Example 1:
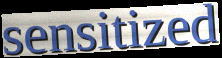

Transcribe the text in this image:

sensitized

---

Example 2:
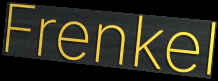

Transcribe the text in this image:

Frenkel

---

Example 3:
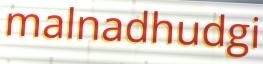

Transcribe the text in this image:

malnadhudgi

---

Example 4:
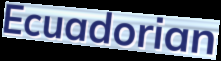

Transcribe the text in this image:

Ecuadorian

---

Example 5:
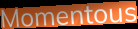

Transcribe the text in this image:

Momentous